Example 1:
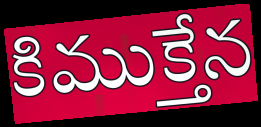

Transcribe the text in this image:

కిముక్తేన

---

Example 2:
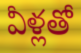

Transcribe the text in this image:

వీళ్లతో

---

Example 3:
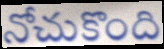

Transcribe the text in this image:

నోచుకొంది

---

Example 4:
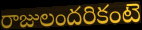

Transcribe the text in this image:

రాజులందరికంటె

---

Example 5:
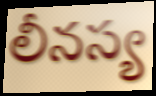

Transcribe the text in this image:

లీనస్య